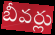
బీవర్లు